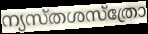
ന്യസ്തശസ്ത്രോ